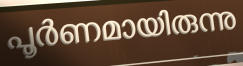
പൂർണമായിരുന്നു